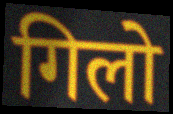
गिलो